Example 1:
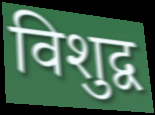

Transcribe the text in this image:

विशुद्व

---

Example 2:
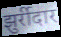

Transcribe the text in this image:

झुर्रीदार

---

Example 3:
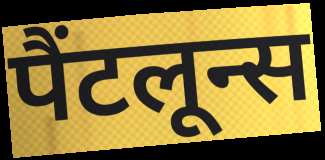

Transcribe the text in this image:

पैंटलून्स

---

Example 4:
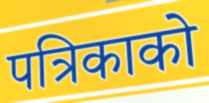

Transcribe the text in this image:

पत्रिकाको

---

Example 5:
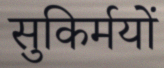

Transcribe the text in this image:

सुकिर्मयों